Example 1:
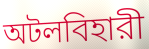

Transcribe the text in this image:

অটলবিহারী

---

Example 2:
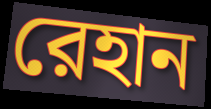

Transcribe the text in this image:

রেহান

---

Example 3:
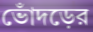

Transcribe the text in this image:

ভোঁদড়ের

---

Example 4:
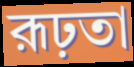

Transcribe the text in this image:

রূঢ়তা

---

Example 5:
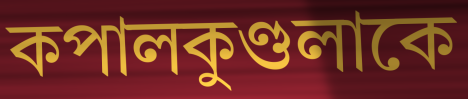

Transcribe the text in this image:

কপালকুণ্ডলাকে